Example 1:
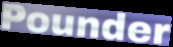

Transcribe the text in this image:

Pounder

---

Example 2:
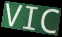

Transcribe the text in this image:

VIC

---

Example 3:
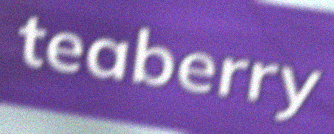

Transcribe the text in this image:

teaberry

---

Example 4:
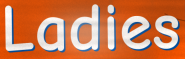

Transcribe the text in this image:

Ladies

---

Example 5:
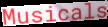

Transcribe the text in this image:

Musicals